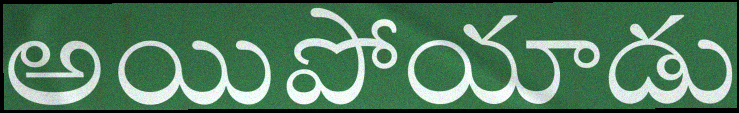
అయిపోయాడు